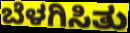
ಬೆಳಗಿಸಿತು